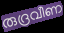
രുദ്രവീണ